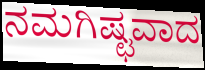
ನಮಗಿಷ್ಟವಾದ